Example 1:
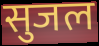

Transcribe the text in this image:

सुजल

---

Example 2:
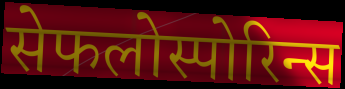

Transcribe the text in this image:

सेफलोस्पोरिन्स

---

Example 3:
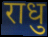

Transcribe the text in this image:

राधु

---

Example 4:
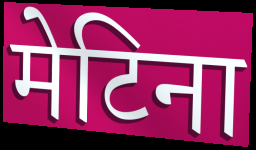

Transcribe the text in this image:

मेटिना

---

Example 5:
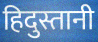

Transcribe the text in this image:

हिदुस्तानी